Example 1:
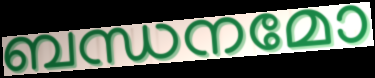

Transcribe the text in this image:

ബന്ധനമോ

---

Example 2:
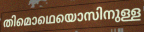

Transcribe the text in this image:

തിമൊഥെയൊസിനുള്ള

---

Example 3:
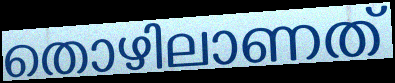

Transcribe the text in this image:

തൊഴിലാണത്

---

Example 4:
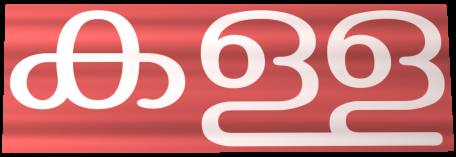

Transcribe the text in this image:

കള്ള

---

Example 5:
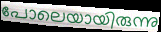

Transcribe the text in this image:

പോലെയായിരുന്നു